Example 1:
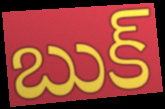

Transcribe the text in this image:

బుక్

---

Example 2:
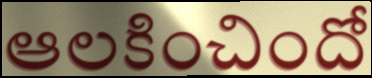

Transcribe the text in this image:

ఆలకించిందో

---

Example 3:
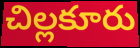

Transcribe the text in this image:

చిల్లకూరు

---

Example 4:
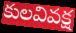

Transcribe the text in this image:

కులవివక్ష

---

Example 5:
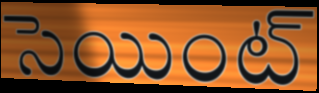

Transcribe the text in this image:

సెయింట్